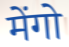
मेंगो